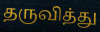
தருவித்து